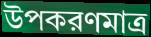
উপকরণমাত্র